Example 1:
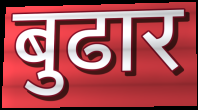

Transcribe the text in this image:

बुढार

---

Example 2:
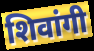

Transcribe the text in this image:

शिवांगी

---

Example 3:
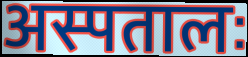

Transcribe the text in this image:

अस्पतालः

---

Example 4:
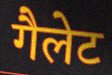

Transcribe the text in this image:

गैलेट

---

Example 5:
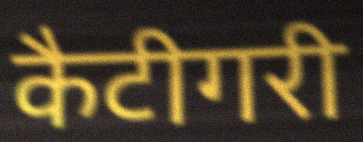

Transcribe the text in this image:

कैटीगरी